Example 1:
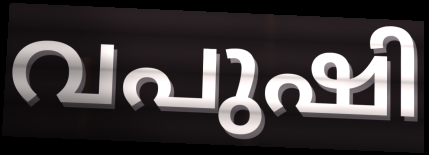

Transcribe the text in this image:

വപുഷി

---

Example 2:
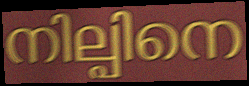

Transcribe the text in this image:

നില്പിനെ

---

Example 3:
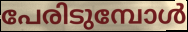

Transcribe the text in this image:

പേരിടുമ്പോൾ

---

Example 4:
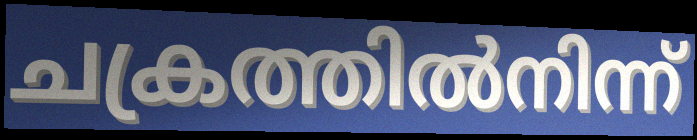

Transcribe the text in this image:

ചക്രത്തിൽനിന്ന്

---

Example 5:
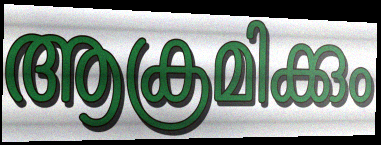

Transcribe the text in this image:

ആക്രമിക്കും